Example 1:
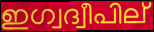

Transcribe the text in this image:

ഇഗ്വദ്വീപില്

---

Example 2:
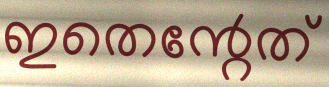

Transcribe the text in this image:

ഇതെന്റേത്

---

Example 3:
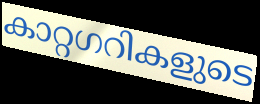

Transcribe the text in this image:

കാറ്റഗറികളുടെ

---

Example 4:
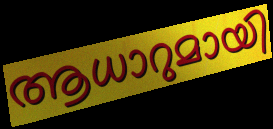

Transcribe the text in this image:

ആധാറുമായി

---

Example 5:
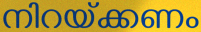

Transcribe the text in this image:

നിറയ്‌ക്കണം